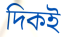
দিকই